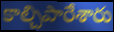
కాల్చిపారేశారు